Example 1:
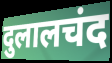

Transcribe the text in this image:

दुलालचंद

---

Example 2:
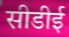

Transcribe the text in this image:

सीडीई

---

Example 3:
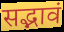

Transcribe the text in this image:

सद्भावं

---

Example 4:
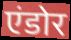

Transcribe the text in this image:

एंडोर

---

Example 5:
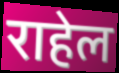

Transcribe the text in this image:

राहेल